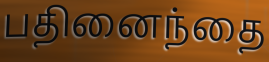
பதினைந்தை